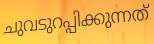
ചുവടുറപ്പിക്കുന്നത്